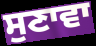
ਸੁਣਾਵਾ